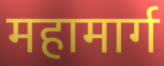
महामार्ग